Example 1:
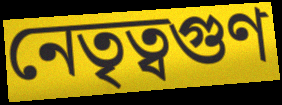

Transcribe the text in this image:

নেতৃত্বগুণ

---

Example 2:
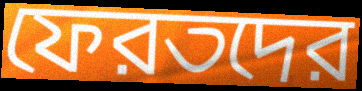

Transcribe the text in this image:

ফেরতদের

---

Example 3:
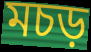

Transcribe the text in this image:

মচড়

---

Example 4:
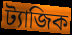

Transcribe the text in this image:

ট্যাজিক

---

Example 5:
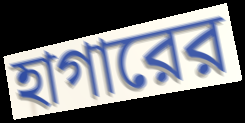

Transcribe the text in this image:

হাগারের